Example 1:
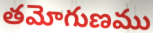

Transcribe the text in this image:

తమోగుణము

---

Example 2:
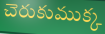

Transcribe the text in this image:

చెరుకుముక్క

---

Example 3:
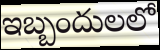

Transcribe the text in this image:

ఇబ్బందులలో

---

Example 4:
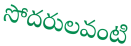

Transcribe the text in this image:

సోదరులవంటి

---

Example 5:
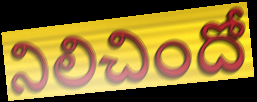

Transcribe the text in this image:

నిలిచిందో